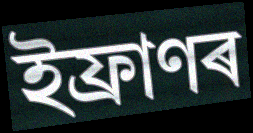
ইফ্ৰাণৰ